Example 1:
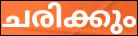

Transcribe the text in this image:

ചരിക്കും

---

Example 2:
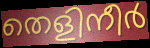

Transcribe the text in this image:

തെളിനീർ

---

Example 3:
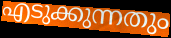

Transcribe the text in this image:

എടുക്കുന്നതും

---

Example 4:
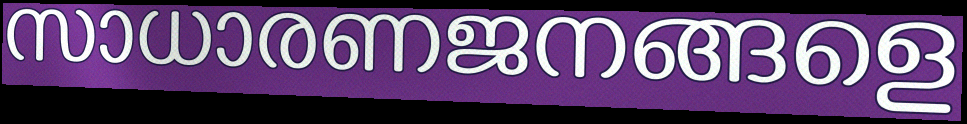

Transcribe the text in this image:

സാധാരണജനങ്ങളെ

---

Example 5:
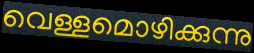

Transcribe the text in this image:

വെള്ളമൊഴിക്കുന്നു